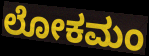
ಲೋಕಮಂ